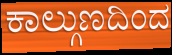
ಕಾಲ್ಗುಣದಿಂದ